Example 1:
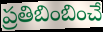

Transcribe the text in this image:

ప్రతిబింబించే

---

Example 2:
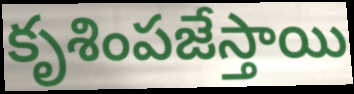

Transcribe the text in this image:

కృశింపజేస్తాయి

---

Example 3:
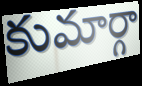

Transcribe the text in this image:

కుమార్గా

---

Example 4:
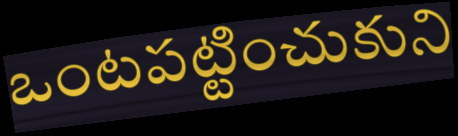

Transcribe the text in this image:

ఒంటపట్టించుకుని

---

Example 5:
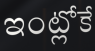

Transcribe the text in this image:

ఇంట్లోకే